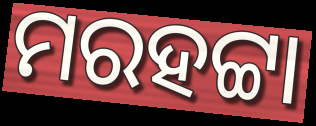
ମରହଟ୍ଟା